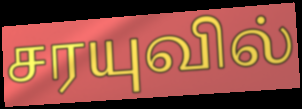
சரயுவில்